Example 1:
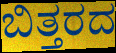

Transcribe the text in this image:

ಬಿತ್ತರದ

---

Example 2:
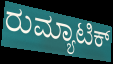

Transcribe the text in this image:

ರುಮ್ಯಾಟಿಕ್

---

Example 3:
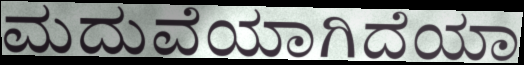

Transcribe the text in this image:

ಮದುವೆಯಾಗಿದೆಯಾ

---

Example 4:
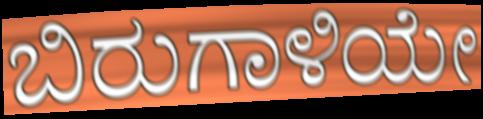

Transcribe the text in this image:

ಬಿರುಗಾಳಿಯೇ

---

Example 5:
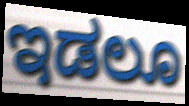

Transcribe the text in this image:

ಇಡಲೂ